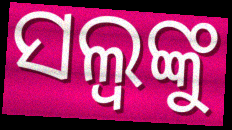
ସଲ୍ୱଙ୍କୁ